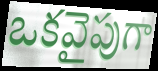
ఒకవైపుగా